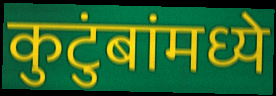
कुटुंबांमध्ये